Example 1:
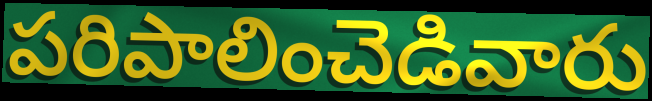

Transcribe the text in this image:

పరిపాలించెడివారు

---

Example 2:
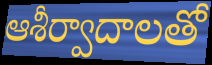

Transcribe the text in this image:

ఆశీర్వాదాలతో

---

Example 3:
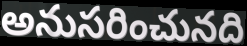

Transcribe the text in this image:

అనుసరించునది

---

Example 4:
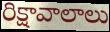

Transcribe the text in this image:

రిక్షావాలాలు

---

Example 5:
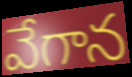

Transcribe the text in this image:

వేగాన